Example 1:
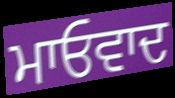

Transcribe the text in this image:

ਮਾਓਵਾਦ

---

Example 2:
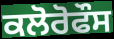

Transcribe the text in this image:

ਕਲੋਰੋਫੌਸ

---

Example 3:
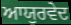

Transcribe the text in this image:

ਆਯੁਰਵੇਦ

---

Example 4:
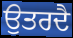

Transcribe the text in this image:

ਉਤਰਦੈ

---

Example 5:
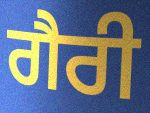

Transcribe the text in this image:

ਗੈਰੀ